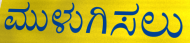
ಮುಳುಗಿಸಲು